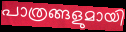
പാത്രങ്ങളുമായി